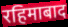
रहिमाबाद